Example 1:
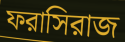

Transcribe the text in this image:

ফরাসিরাজ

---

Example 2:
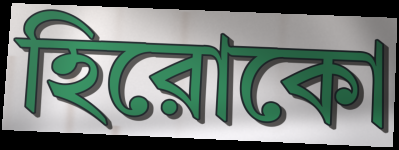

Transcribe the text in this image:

হিরোকো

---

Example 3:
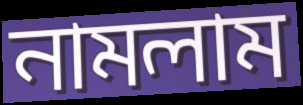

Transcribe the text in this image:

নামলাম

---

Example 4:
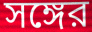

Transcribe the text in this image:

সঙ্গের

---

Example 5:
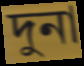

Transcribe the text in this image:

দুনা